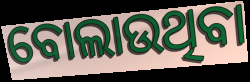
ବୋଲାଉଥିବା